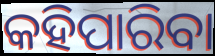
କହିପାରିବା